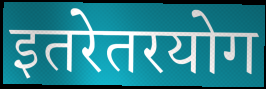
इतरेतरयोग